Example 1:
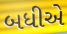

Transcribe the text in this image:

બધીએ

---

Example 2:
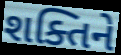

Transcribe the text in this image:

શક્તિને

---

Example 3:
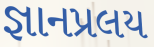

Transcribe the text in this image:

જ્ઞાનપ્રલય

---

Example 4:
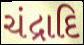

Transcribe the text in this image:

ચંદ્રાદિ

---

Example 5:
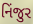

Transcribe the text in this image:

નિંજુર